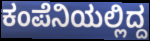
ಕಂಪೆನಿಯಲ್ಲಿದ್ದ